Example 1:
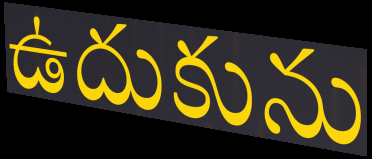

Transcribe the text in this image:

ఉదుకును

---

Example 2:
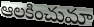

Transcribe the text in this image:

ఆలకించుమా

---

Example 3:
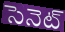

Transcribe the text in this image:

సెనెట్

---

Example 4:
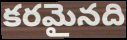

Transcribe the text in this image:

కరమైనది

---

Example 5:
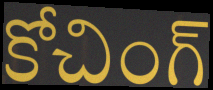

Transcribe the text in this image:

కోచింగ్